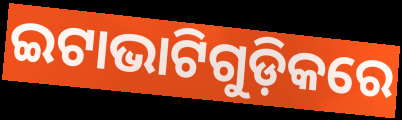
ଇଟାଭାଟିଗୁଡ଼ିକରେ